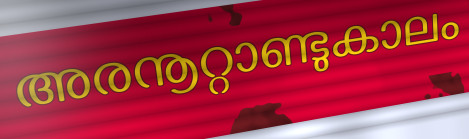
അരനൂറ്റാണ്ടുകാലം